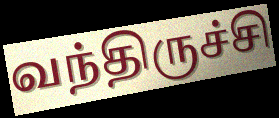
வந்திருச்சி